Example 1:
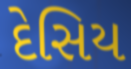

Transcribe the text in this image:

દેસિય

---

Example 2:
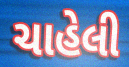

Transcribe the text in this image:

ચાહેલી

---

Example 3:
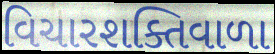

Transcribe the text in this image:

વિચારશક્તિવાળા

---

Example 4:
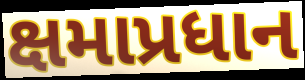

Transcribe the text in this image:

ક્ષમાપ્રધાન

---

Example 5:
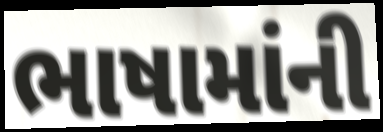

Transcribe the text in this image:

ભાષામાંની